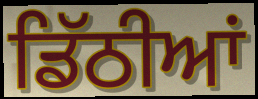
ਡਿੱਠੀਆਂ